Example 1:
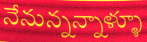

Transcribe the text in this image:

నేనున్నన్నాళ్ళూ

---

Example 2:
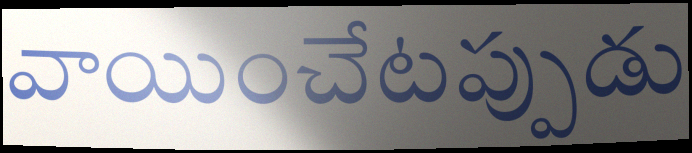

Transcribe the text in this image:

వాయించేటప్పుడు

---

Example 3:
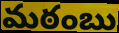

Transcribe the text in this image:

మఠంబు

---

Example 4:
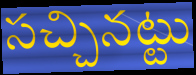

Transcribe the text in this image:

సచ్చినట్టు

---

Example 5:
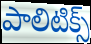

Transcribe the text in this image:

పాలిటిక్స్